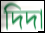
দিদা